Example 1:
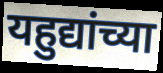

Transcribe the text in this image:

यहुद्यांच्या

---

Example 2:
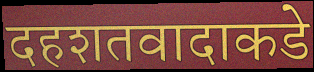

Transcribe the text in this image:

दहशतवादाकडे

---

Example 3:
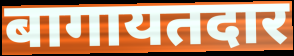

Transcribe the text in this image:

बागायतदार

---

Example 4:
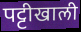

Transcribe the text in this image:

पट्टीखाली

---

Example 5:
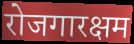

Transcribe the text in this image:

रोजगारक्षम